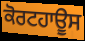
ਕੋਰਟਹਾਊਸ